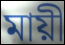
মায়ী